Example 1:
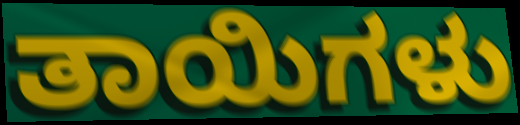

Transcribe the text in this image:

ತಾಯಿಗಳು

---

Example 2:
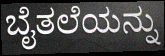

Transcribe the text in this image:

ಬೈತಲೆಯನ್ನು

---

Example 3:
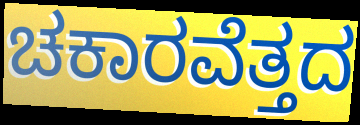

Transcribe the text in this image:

ಚಕಾರವೆತ್ತದ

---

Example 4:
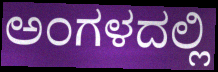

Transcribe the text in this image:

ಅಂಗಳದಲ್ಲಿ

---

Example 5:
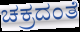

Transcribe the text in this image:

ಚಕ್ರದಂತೆ